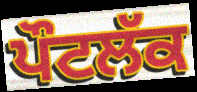
ਪੌਟਲੱਕ